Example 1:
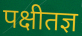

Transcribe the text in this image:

पक्षीतज्ञ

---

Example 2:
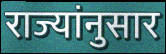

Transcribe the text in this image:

राज्यांनुसार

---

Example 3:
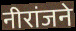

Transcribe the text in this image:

नीरांजने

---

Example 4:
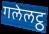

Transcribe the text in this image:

गलेलट्ठ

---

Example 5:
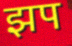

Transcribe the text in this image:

झप